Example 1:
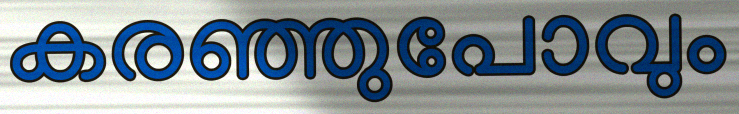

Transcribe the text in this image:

കരഞ്ഞുപോവും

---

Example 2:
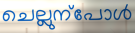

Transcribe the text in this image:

ചെല്ലുന്പോൾ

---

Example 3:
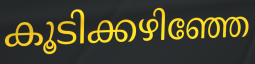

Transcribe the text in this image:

കൂടിക്കഴിഞ്ഞേ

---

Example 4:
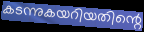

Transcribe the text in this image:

കടന്നുകയറിയതിന്റെ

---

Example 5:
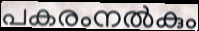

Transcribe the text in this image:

പകരംനൽകും